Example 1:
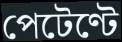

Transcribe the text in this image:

পেটেণ্টে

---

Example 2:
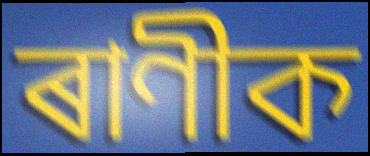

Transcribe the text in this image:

ৰাণীক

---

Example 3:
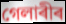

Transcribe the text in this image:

গেলাৰীৰ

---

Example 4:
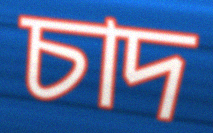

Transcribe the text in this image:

চাদ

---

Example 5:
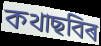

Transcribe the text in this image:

কথাছবিৰ